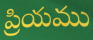
ప్రియము